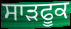
ਸਾੜਫੂਕ